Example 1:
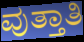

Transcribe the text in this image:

ವುತ್ತಾತಿ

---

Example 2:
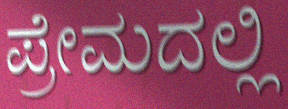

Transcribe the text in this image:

ಪ್ರೇಮದಲ್ಲಿ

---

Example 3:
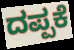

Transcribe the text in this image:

ದಪ್ಪಕೆ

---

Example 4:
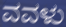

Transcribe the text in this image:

ವವಳು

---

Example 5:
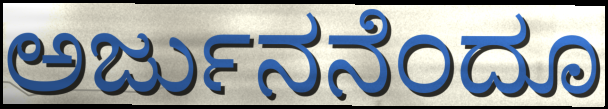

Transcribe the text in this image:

ಅರ್ಜುನನೆಂದೂ